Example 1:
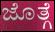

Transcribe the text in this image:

ಜೊತ್ಗೆ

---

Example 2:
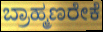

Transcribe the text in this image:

ಬ್ರಾಹ್ಮಣರೇಕೆ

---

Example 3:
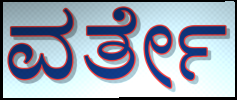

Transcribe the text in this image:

ವರ್ತೇ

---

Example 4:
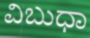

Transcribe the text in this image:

ವಿಬುಧಾ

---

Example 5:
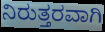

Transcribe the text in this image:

ನಿರುತ್ತರವಾಗಿ